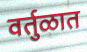
वर्तुळात